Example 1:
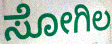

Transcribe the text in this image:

ಸೋಗಿಲ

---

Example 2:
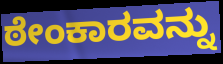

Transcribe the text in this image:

ಠೇಂಕಾರವನ್ನು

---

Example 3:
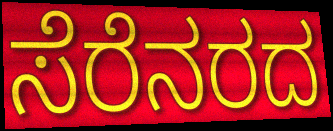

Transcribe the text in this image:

ಸೆರೆನರದ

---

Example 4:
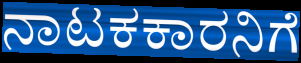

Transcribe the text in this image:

ನಾಟಕಕಾರನಿಗೆ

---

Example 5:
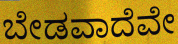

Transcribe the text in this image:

ಬೇಡವಾದೆವೇ